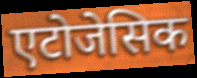
एटोजेसिक